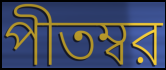
পীতম্বর